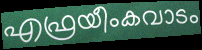
എഫ്രയീംകവാടം